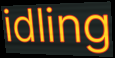
idling